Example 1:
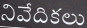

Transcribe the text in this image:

నివేదికలు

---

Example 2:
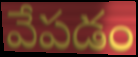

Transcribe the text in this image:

వేపడం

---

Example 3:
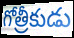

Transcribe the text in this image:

గోత్రీకుడు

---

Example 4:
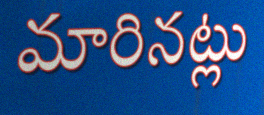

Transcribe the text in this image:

మారినట్లు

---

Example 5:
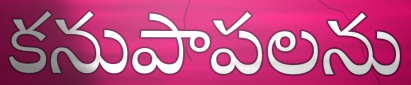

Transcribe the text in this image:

కనుపాపలను